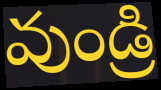
వుండ్రి